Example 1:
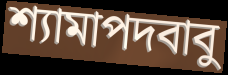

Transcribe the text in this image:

শ্যামাপদবাবু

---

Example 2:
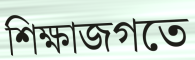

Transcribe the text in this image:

শিক্ষাজগতে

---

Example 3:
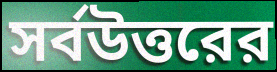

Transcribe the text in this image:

সর্বউত্তরের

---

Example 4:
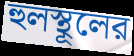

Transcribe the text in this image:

হুলস্থূলের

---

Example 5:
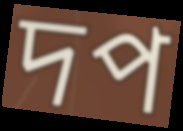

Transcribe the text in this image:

দপ